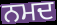
ਨਮਦ